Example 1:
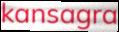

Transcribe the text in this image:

kansagra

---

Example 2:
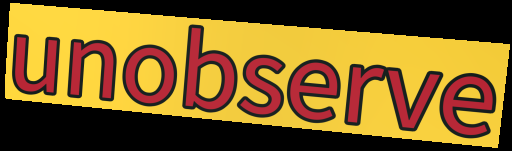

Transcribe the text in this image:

unobserve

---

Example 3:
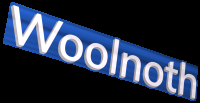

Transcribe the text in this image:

Woolnoth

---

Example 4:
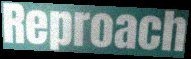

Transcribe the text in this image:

Reproach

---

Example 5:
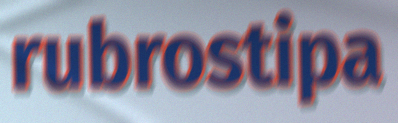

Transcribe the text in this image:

rubrostipa